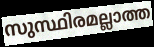
സുസ്ഥിരമല്ലാത്ത